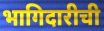
भागिदारीची